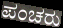
ಪಂಚರು